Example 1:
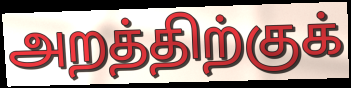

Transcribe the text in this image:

அறத்திற்குக்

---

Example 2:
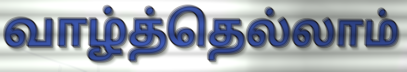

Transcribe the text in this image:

வாழ்த்தெல்லாம்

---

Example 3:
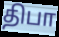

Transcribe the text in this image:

திபா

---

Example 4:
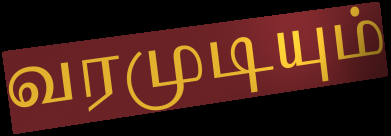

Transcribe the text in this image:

வரமுடியும்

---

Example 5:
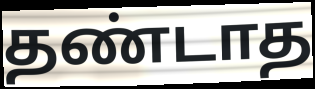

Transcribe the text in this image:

தண்டாத